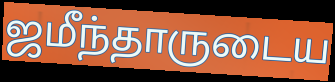
ஜமீந்தாருடைய